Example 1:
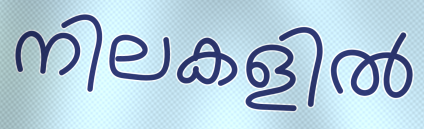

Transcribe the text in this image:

നിലകളിൽ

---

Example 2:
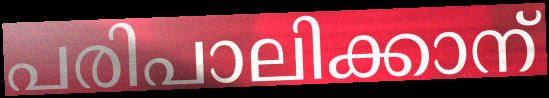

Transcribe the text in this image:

പരിപാലിക്കാന്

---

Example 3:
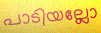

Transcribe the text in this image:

പാടിയല്ലോ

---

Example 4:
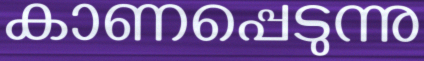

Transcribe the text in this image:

കാണപ്പെടുന്നു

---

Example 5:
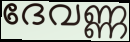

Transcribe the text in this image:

ദേവണ്ണ